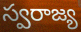
స్వరాజ్య